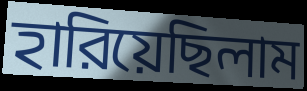
হারিয়েছিলাম